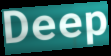
Deep